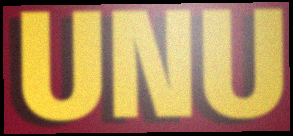
UNU